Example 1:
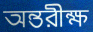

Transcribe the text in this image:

অন্তরীক্ষ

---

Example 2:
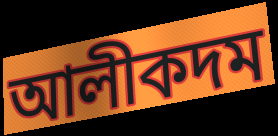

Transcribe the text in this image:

আলীকদম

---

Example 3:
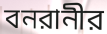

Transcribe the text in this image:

বনরানীর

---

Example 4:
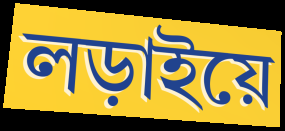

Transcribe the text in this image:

লড়াইয়ে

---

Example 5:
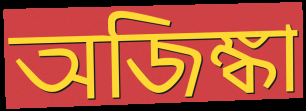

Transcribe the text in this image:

অজিঙ্কা